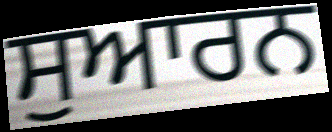
ਸੁਆਰਨ